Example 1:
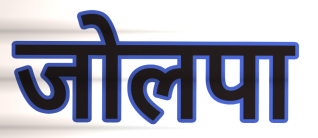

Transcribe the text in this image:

जोलपा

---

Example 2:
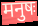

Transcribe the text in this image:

मनुषः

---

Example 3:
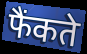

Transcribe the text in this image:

फैंकते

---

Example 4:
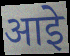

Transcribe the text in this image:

आइे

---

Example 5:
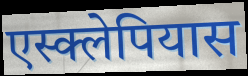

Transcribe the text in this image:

एस्क्लेपियास